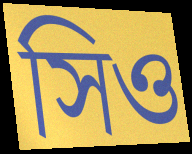
সিও